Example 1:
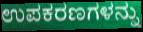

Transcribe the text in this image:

ಉಪಕರಣಗಳನ್ನು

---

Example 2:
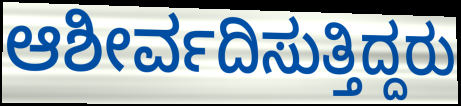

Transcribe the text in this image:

ಆಶೀರ್ವದಿಸುತ್ತಿದ್ದರು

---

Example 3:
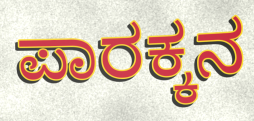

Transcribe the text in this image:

ಪಾರಕ್ಕನ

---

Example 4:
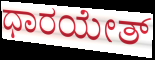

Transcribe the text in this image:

ಧಾರಯೇತ್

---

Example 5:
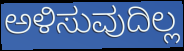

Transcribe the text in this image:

ಅಳಿಸುವುದಿಲ್ಲ